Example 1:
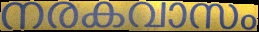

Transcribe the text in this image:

നരകവാസം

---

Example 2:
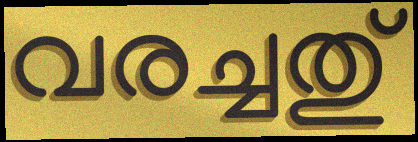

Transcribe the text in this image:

വരച്ചതു്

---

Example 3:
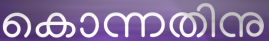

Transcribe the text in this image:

കൊന്നതിനു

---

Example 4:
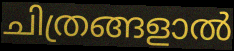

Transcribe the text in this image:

ചിത്രങ്ങളാൽ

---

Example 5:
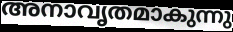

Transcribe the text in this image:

അനാവൃതമാകുന്നു